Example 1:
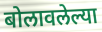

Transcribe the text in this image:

बोलावलेल्या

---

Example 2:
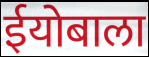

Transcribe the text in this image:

ईयोबाला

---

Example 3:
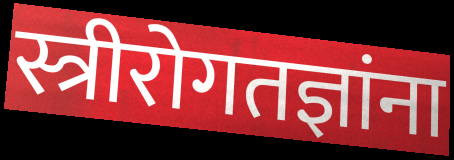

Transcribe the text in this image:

स्त्रीरोगतज्ञांना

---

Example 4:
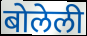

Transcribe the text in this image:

बोलेली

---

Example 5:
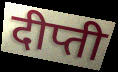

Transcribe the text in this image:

दीप्ती